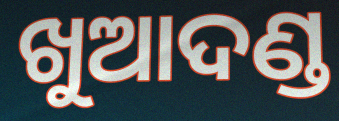
ଖୁଆଦଣ୍ଡ